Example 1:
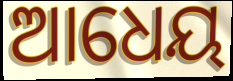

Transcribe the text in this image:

ଆଧେୟ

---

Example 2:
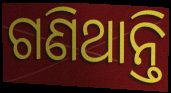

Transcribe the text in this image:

ଗଣିଥାନ୍ତି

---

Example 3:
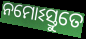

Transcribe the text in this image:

ନମୋଽସ୍ତୁତେ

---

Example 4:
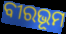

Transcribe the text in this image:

ବୀରଭୂମ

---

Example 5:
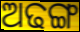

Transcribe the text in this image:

ଅଢଙ୍ଗ